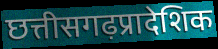
छत्तीसगढ़प्रादेशिक